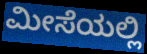
ಮೀಸೆಯಲ್ಲಿ